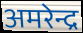
अमरेन्द्र